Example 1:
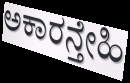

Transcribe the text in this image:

ಅಕಾರನ್ತೇಹಿ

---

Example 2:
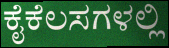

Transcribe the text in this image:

ಕೈಕೆಲಸಗಳಲ್ಲಿ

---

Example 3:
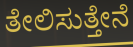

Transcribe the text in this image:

ತೇಲಿಸುತ್ತೇನೆ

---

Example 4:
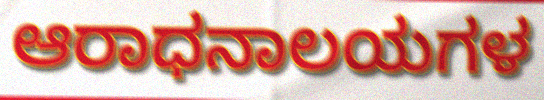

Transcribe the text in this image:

ಆರಾಧನಾಲಯಗಳ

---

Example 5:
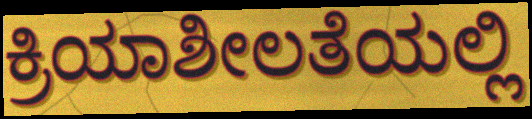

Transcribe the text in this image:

ಕ್ರಿಯಾಶೀಲತೆಯಲ್ಲಿ